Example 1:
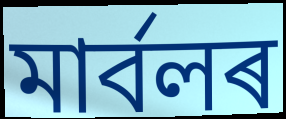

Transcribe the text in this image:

মাৰ্বলৰ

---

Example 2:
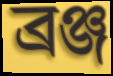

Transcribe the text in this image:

ব্ৰঞ্জ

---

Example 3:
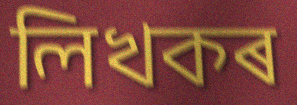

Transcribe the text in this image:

লিখকৰ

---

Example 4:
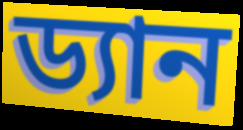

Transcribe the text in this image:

ড্যান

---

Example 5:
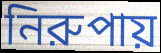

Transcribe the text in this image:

নিৰুপায়